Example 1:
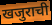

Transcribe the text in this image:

खजुराची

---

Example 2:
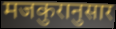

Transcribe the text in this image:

मजकुरानुसार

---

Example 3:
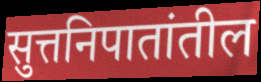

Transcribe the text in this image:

सुत्तनिपातांतील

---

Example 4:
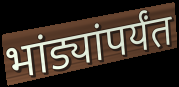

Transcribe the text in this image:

भांड्यांपर्यंत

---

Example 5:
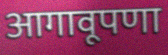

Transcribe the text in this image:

आगावूपणा